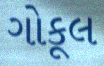
ગોકૂલ